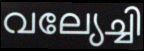
വല്യേച്ചി